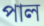
পাল